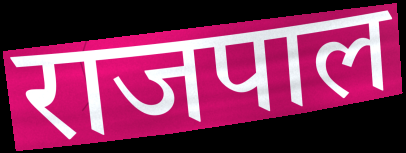
राजपाल